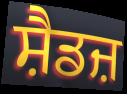
ਸ਼ੈਡਜ਼